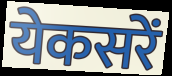
येकसरें